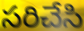
సరిచేసి